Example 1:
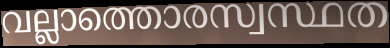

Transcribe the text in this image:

വല്ലാത്തൊരസ്വസ്ഥത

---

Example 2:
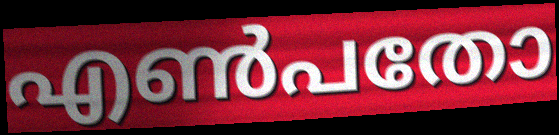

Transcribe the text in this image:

എൺപതോ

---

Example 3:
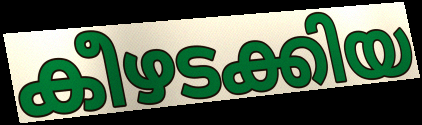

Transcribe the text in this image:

കീഴടക്കിയ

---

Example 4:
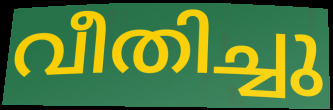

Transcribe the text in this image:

വീതിച്ചു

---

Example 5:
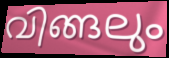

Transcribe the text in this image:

വിങ്ങലും